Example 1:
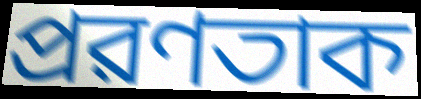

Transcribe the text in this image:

প্ৰৱণতাক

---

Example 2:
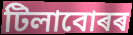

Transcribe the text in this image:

টিলাবোৰৰ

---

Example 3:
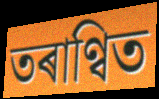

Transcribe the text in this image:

তৰাণ্বিত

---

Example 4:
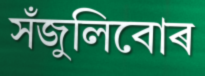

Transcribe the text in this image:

সঁজুলিবোৰ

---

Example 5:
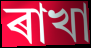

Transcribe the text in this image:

ৰাখা